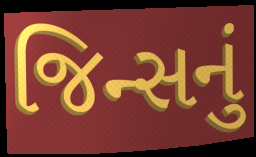
જિન્સનું